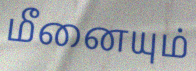
மீனையும்